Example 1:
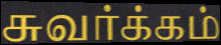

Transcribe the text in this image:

சுவர்க்கம்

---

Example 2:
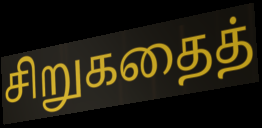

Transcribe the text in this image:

சிறுகதைத்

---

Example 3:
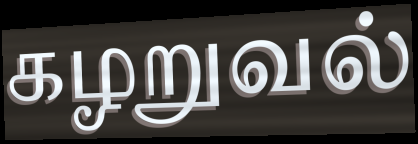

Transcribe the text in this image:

கழறுவல்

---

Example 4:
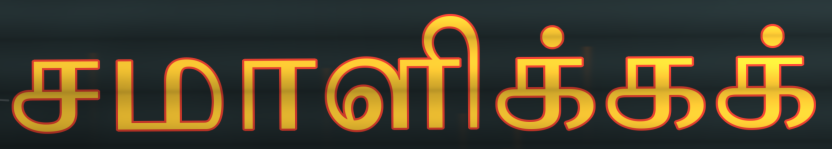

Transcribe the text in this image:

சமாளிக்கக்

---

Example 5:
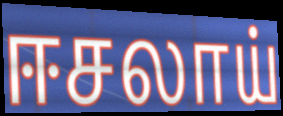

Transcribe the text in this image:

ஈசலாய்